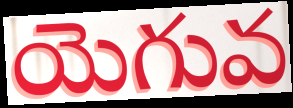
యెగువ